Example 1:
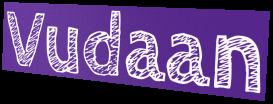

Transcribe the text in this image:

Vudaan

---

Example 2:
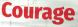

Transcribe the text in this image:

Courage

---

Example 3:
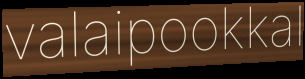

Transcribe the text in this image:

valaipookkal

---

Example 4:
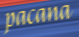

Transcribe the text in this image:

pacana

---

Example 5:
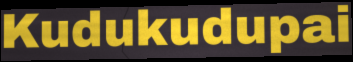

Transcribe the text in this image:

Kudukudupai